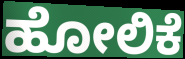
ಹೋಲಿಕೆ